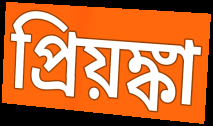
প্রিয়ঙ্কা